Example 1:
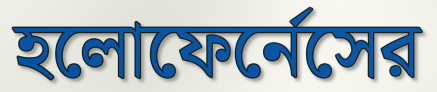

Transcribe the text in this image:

হলোফের্নেসের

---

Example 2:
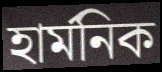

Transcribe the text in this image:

হার্মনিক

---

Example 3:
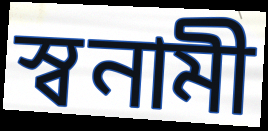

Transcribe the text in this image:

স্বনামী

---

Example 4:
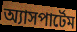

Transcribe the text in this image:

অ্যাসপার্টেম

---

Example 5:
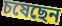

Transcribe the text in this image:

চষেছেন